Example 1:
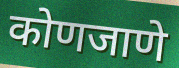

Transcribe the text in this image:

कोणजाणे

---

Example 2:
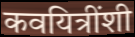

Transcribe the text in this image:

कवयित्रींशी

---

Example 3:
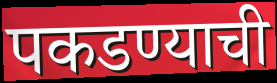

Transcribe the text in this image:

पकडण्याची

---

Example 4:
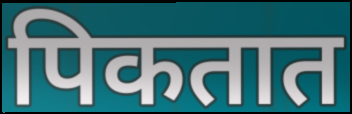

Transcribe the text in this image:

पिकतात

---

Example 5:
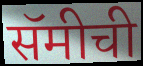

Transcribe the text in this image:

सॅमीची